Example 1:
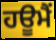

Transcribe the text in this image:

ਹਊਮੈਂ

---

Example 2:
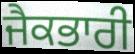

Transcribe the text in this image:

ਜੈਕਭਾਰੀ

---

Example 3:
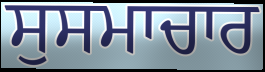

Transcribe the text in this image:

ਸੁਸਮਾਚਾਰ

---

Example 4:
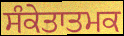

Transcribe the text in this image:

ਸੰਕੇਤਾਤਮਕ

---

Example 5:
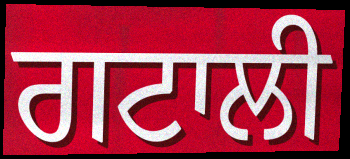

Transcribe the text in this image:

ਗਟਾਲੀ